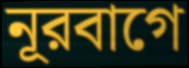
নূরবাগে